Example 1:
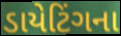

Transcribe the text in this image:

ડાયેટિંગના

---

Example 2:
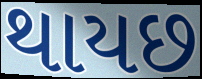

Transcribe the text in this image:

થાયછ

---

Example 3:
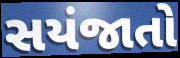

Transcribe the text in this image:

સયંજાતો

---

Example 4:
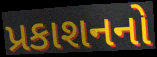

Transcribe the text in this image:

પ્રકાશનનો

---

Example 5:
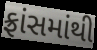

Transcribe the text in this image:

ફ્રાંસમાંથી